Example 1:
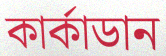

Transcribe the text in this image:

কাৰ্কাডান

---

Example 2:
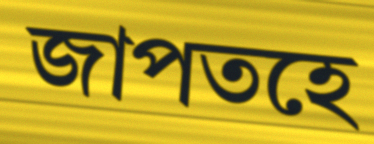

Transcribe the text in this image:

জাপতহে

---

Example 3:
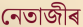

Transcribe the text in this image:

নেতাজীৰ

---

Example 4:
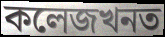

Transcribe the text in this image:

কলেজখনত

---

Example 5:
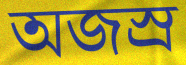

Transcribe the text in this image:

অজস্ৰ